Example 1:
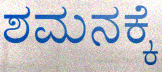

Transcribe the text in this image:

ಶಮನಕ್ಕೆ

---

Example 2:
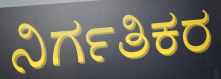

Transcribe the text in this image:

ನಿರ್ಗತಿಕರ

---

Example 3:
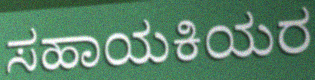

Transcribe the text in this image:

ಸಹಾಯಕಿಯರ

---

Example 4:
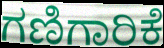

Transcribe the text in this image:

ಗಣಿಗಾರಿಕೆ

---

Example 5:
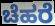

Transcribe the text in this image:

ಚೆಹರೆ